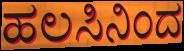
ಹಲಸಿನಿಂದ